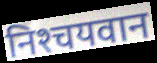
निश्चयवान